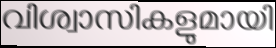
വിശ്വാസികളുമായി